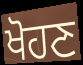
ਖੋਹਣ